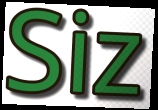
Siz